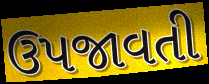
ઉપજાવતી